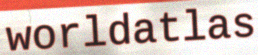
worldatlas